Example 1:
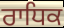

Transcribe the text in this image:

ਰਾਧਿਕ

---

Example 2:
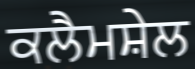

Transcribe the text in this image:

ਕਲੈਮਸ਼ੇਲ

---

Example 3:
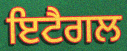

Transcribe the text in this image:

ਇਟੈਗਲ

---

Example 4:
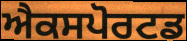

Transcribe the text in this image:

ਐਕਸਪੋਰਟਡ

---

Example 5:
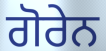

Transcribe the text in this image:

ਗੋਰੇਨ